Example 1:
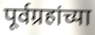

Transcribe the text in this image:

पूर्वग्रहांच्या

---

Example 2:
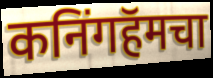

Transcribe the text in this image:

कनिंगहॅमचा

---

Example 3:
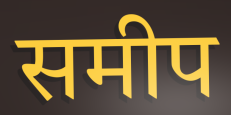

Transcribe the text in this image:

समीप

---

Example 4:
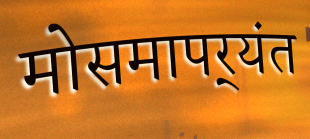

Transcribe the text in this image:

मोसमापर्यंत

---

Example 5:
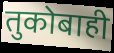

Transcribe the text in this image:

तुकोबाही